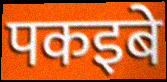
पकइबे